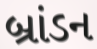
બ્રાંડન